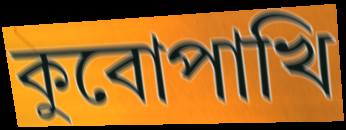
কুবোপাখি